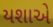
યશાએ